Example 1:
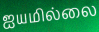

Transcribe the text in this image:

ஐயமில்லை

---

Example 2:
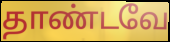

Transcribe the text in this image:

தாண்டவே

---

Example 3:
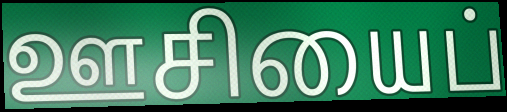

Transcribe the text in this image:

ஊசியைப்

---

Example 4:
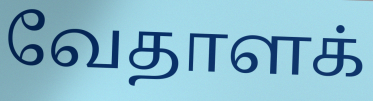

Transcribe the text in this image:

வேதாளக்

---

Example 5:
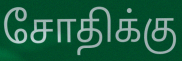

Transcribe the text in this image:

சோதிக்கு